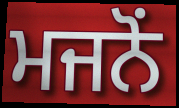
ਮਜਨੋਂ